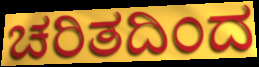
ಚರಿತದಿಂದ